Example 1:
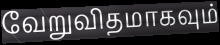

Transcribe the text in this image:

வேறுவிதமாகவும்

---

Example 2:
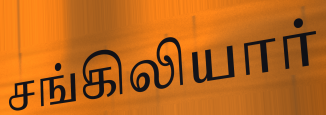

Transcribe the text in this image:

சங்கிலியார்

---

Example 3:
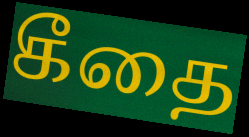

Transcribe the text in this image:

கீதை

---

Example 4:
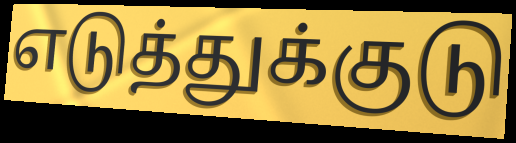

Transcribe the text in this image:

எடுத்துக்குடு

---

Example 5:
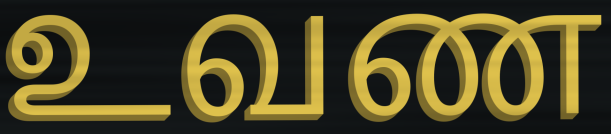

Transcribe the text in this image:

உவண